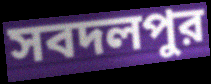
সবদলপুর